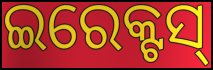
ଇରେକ୍ଟସ୍